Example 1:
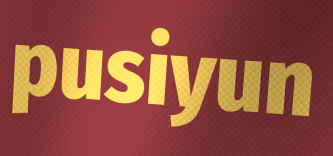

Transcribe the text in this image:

pusiyun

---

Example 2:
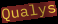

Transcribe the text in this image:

Qualys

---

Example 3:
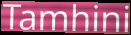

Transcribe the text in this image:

Tamhini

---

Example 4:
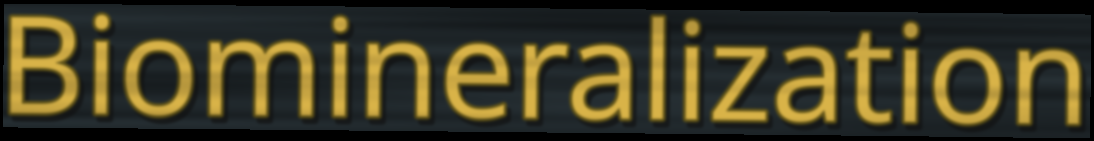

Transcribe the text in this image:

Biomineralization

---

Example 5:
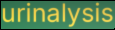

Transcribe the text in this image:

urinalysis